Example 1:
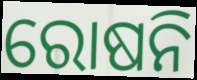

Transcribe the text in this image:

ରୋଷନି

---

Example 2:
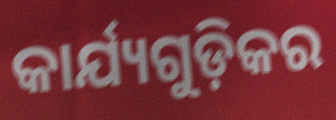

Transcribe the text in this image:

କାର୍ଯ୍ୟଗୁଡ଼ିକର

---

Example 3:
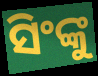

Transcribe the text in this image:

ସିଂଙ୍କୁ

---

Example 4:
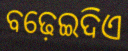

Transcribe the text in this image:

ବଢ଼େଇଦିଏ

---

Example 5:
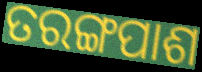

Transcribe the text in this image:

ତରଙ୍ଗପାଶ